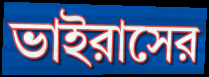
ভাইরাসের